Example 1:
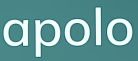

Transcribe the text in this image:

apolo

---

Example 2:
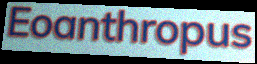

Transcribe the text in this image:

Eoanthropus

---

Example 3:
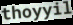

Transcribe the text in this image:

thoyyil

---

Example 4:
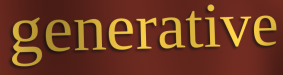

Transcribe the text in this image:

generative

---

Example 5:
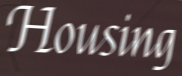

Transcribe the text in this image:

Housing